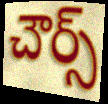
చౌర్స్